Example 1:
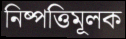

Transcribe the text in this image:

নিষ্পত্তিমূলক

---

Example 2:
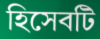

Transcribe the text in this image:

হিসেবটি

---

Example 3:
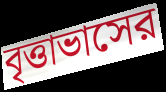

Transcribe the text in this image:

বৃত্তাভাসের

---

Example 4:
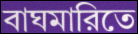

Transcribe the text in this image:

বাঘমারিতে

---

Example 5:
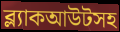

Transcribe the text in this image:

ব্ল্যাকআউটসহ